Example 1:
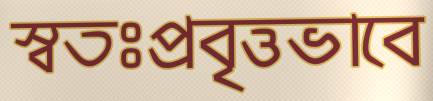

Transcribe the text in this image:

স্বতঃপ্রবৃত্তভাবে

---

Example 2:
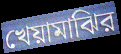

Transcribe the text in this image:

খেয়ামাঝির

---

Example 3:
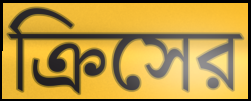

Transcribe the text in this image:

ক্রিসের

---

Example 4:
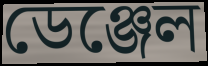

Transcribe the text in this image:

ডেঞ্জেল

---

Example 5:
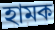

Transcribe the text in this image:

হামক